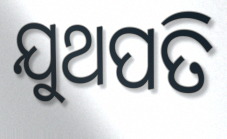
ଯୁଥପତି